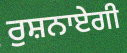
ਰੁਸ਼ਨਾਏਗੀ